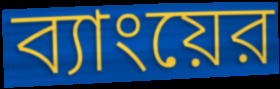
ব্যাংয়ের